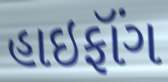
હાઇફૉંગ